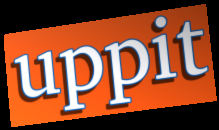
uppit